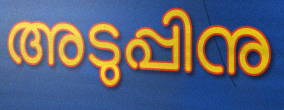
അടുപ്പിനു